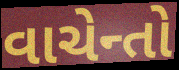
વાચેન્તો